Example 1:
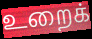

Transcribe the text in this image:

உறைக்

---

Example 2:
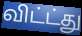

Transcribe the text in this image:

விட்ட்து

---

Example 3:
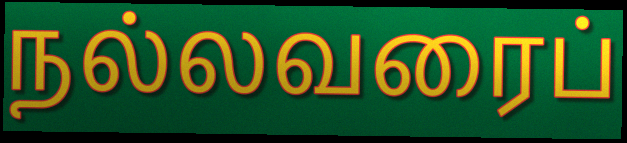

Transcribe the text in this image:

நல்லவரைப்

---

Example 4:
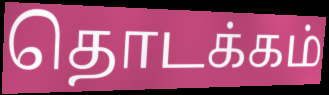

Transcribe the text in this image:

தொடக்கம்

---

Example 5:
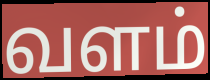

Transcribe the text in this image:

வளம்